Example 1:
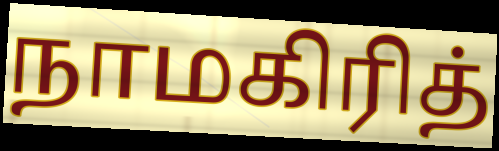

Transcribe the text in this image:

நாமகிரித்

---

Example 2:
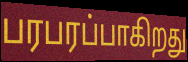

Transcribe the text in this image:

பரபரப்பாகிறது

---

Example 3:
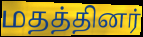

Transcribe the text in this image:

மதத்தினர்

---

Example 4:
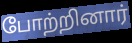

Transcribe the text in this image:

போற்றினார்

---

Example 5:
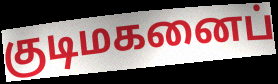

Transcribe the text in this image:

குடிமகனைப்